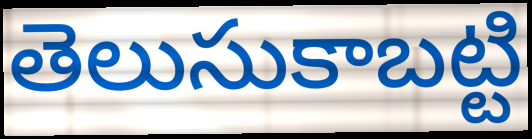
తెలుసుకాబట్టి